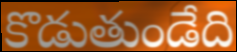
కొడుతుండేది